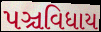
પઞ્ચવિધાય